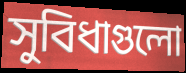
সুবিধাগুলো